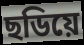
ছডিয়ে